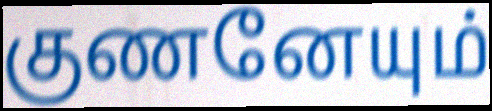
குணனேயும்